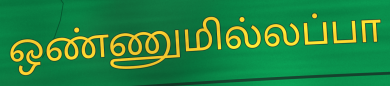
ஒண்ணுமில்லப்பா